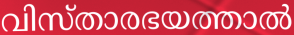
വിസ്താരഭയത്താൽ